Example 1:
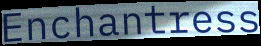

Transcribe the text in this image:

Enchantress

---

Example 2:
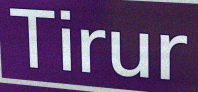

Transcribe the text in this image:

Tirur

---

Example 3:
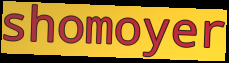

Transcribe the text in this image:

shomoyer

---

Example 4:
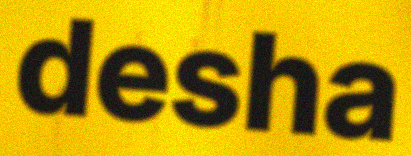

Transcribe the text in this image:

desha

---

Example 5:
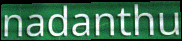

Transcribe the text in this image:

nadanthu